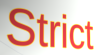
Strict